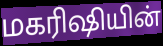
மகரிஷியின்